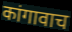
कांगावाच